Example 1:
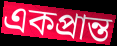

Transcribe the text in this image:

একপ্রান্ত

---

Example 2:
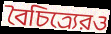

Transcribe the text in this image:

বৈচিত্র্যেরও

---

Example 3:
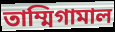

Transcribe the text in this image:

তাম্মিগামাল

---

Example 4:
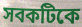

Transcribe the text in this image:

সবকটিকে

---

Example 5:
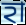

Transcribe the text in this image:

হা